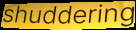
shuddering